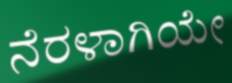
ನೆರಳಾಗಿಯೇ